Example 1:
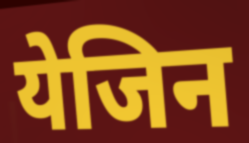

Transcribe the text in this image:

येजिन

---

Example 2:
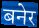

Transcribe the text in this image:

बनेर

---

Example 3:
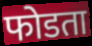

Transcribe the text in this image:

फोडता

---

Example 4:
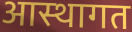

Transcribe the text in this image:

आस्थागत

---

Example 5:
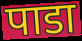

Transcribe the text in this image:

पाडा